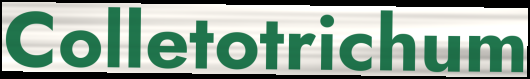
Colletotrichum